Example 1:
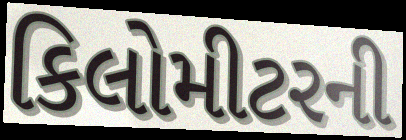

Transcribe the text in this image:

કિલોમીટરની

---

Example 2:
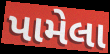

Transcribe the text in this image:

પામેલા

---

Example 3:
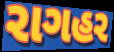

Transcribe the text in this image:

રાગહર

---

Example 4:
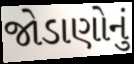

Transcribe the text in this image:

જોડાણોનું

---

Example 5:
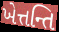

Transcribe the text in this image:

ખેત્તન્તિ